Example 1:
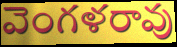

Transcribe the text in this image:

వెంగళరావు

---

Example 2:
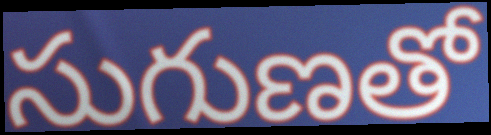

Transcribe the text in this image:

సుగుణతో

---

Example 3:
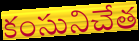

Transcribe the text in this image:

కంసునిచేత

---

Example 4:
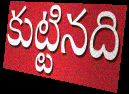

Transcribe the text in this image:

కుట్టినది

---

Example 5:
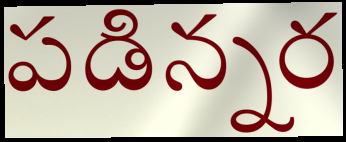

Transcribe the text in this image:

పడిన్నర